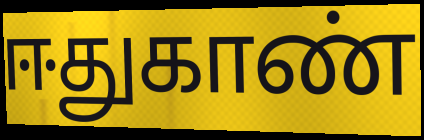
ஈதுகாண்